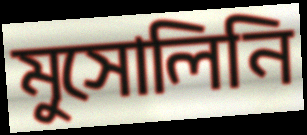
মুসোলিনি